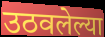
उठवलेल्या